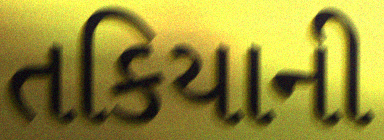
તકિયાની